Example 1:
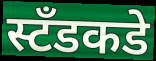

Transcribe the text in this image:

स्टॅंडकडे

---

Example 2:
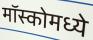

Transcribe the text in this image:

मॉस्कोमध्ये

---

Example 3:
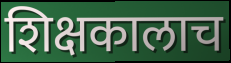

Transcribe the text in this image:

शिक्षकालाच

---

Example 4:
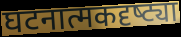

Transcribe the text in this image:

घटनात्मकदृष्ट्या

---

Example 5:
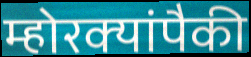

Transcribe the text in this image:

म्होरक्यांपैकी